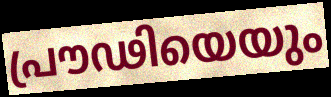
പ്രൗഢിയെയും